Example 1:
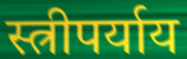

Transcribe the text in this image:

स्त्रीपर्याय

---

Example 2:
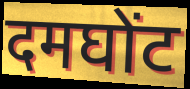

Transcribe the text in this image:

दमघोंट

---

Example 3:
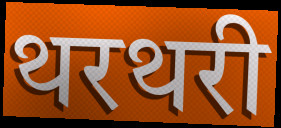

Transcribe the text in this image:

थरथरी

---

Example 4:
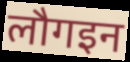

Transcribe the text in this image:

लौगइन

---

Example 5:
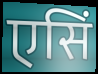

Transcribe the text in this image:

एसिं